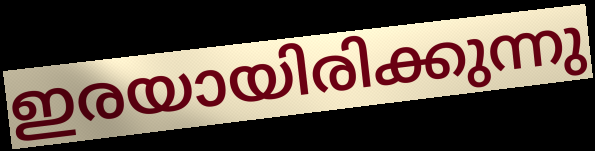
ഇരയായിരിക്കുന്നു